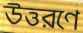
উত্তরণে